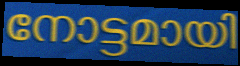
നോട്ടമായി